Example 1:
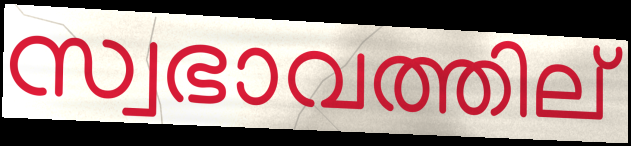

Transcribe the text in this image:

സ്വഭാവത്തില്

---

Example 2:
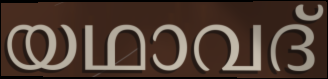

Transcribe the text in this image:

യഥാവദ്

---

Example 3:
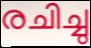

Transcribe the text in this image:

രചിച്ചു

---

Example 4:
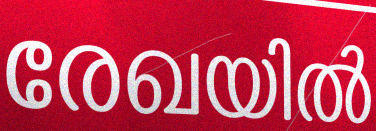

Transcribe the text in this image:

രേഖയിൽ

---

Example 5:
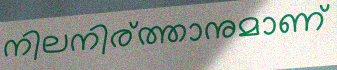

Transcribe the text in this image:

നിലനിര്ത്താനുമാണ്